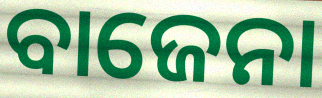
ବାଜେନା